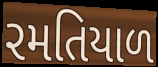
રમતિયાળ